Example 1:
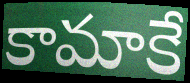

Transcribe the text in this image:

కామాకే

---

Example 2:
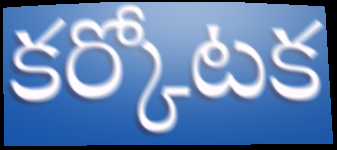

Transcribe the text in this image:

కర్కోటక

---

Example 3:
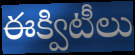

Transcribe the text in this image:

ఈక్విటీలు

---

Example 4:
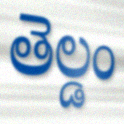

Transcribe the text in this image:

తెల్డం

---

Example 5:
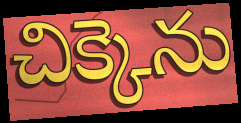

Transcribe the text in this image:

చిక్కెను